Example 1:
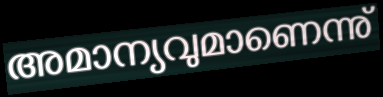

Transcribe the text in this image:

അമാന്യവുമാണെന്നു്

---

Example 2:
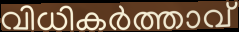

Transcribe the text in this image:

വിധികർത്താവ്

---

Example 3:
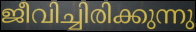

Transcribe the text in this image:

ജീവിച്ചിരിക്കുന്നു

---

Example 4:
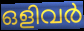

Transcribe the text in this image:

ഒളിവർ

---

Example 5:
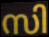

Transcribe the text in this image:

സി